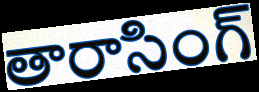
తారాసింగ్